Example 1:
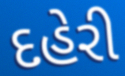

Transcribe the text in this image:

દહેરી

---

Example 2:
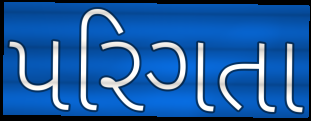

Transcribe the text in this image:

પરિગતા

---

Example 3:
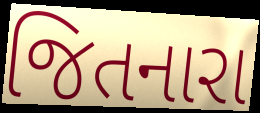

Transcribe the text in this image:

જિતનારા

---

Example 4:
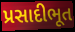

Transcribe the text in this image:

પ્રસાદીભૂત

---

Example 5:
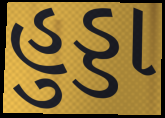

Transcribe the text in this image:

હુડ્ડા